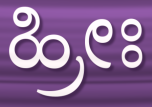
ಹ್ರೀಃ